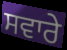
ਸਵਾਰੇ